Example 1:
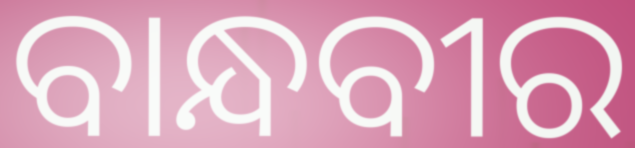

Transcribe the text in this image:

ବାନ୍ଧବୀର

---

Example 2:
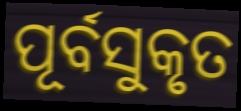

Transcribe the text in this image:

ପୂର୍ବସୁକୃତ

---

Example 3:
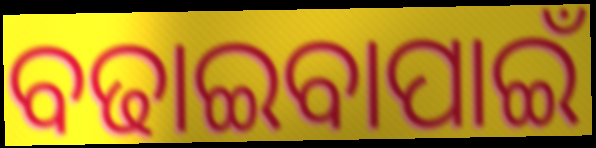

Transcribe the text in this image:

ବଢାଇବାପାଇଁ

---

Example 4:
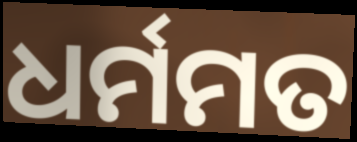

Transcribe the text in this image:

ଧର୍ମମତ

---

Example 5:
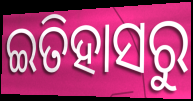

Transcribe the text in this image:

ଇତିହାସରୁ